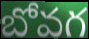
బోవగ